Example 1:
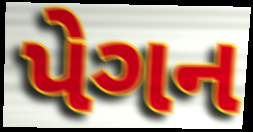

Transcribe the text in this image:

પેગન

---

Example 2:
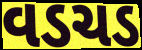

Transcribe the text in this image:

વડચડ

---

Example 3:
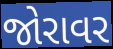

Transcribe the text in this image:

જોરાવર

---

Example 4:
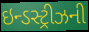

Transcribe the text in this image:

ઇન્ડસ્ટ્રીઝની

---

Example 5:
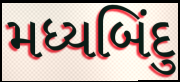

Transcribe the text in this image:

મધ્યબિંદુ